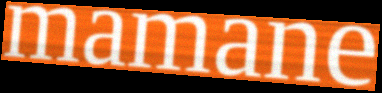
mamane